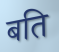
बति